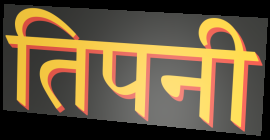
तिपनी